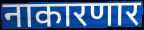
नाकारणार